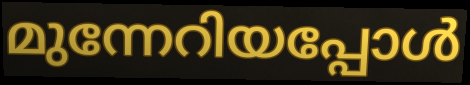
മുന്നേറിയപ്പോൾ